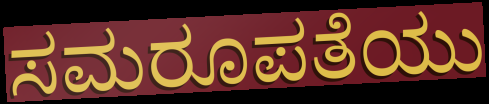
ಸಮರೂಪತೆಯು